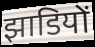
झाडियों